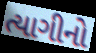
ત્યાગીનો